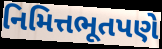
નિમિત્તભૂતપણે